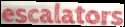
escalators